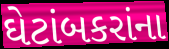
ઘેટાંબકરાંના